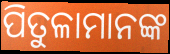
ପିତୁଳାମାନଙ୍କ